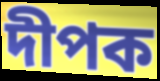
দীপক